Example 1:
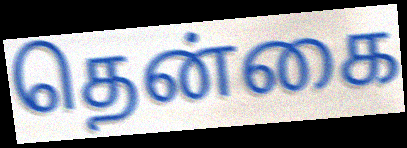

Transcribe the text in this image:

தென்கை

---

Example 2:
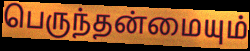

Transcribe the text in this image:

பெருந்தன்மையும்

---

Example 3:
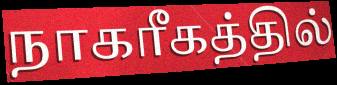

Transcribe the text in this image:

நாகரீகத்தில்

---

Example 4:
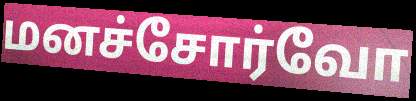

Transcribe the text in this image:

மனச்சோர்வோ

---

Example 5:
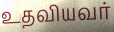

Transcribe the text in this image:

உதவியவர்